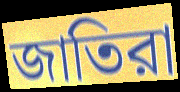
জাতিরা